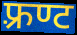
फ़्रण्ट